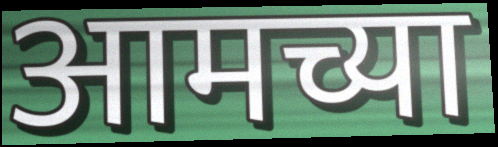
आमच्या